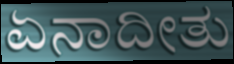
ಏನಾದೀತು